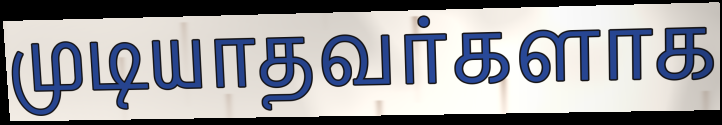
முடியாதவர்களாக